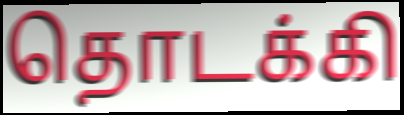
தொடக்கி